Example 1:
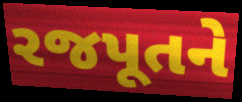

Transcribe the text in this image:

રજપૂતને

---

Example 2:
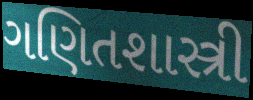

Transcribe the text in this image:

ગણિતશાસ્ત્રી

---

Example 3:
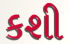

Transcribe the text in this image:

કશી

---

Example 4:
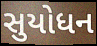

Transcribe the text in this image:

સુયોધન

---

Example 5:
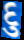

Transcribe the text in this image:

દુ